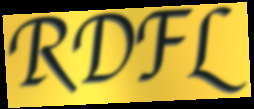
RDFL